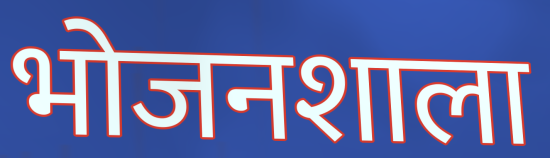
भोजनशाला